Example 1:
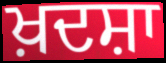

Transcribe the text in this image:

ਖ਼ਦਸ਼ਾ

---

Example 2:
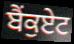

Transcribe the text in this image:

ਬੈਂਕੁਏਟ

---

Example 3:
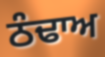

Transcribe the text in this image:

ਠੰਢਾਅ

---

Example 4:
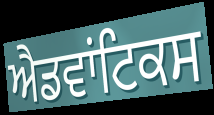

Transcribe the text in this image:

ਐਡਵਾਂਟਿਕਸ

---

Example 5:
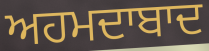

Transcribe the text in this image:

ਅਹਮਦਾਬਾਦ